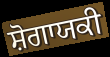
ਸ਼ੋਗਾਯਕੀ